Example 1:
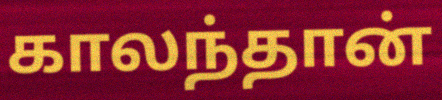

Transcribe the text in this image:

காலந்தான்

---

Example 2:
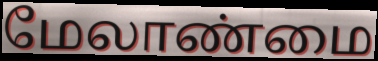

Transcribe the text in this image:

மேலாண்மை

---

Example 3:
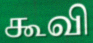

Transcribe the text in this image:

கூவி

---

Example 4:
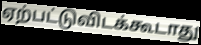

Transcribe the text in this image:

ஏற்பட்டுவிடக்கூடாது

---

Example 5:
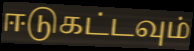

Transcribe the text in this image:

ஈடுகட்டவும்